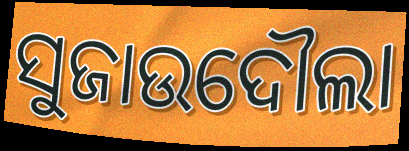
ସୁଜାଉଦୌଲା